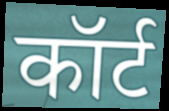
कॉर्ट